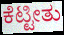
ಕೆಟ್ಟೀತು